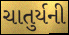
ચાતુર્યની